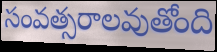
సంవత్సరాలవుతోంది